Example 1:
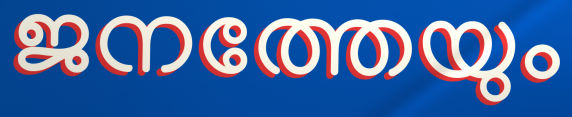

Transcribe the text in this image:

ജനത്തേയും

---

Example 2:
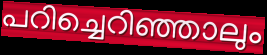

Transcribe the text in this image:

പറിച്ചെറിഞ്ഞാലും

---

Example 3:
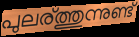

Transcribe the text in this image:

പുലര്ത്തുന്നുണ്ട്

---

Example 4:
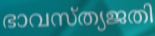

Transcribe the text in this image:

ഭാവസ്ത്യജതി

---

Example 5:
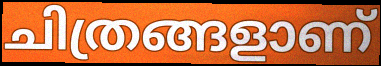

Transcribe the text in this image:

ചിത്രങ്ങളാണ്